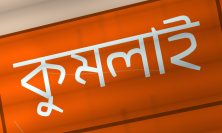
কুমলাই